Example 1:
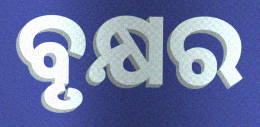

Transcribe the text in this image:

ବୃକ୍ଷର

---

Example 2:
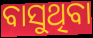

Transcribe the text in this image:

ବାସୁଥିବା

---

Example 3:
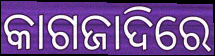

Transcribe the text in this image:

କାଗଜାଦିରେ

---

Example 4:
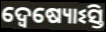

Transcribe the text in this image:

ଦ୍ୱେଷ୍ୟୋଽସ୍ତି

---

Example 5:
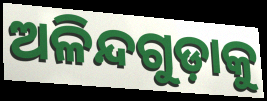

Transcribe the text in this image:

ଅଳିନ୍ଦଗୁଡ଼ାକୁ